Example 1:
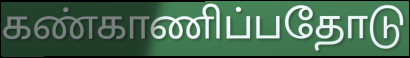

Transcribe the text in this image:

கண்காணிப்பதோடு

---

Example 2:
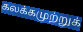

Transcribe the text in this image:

கலக்கமுற்றுக்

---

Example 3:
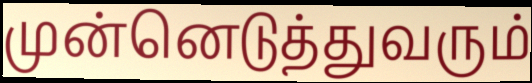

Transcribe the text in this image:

முன்னெடுத்துவரும்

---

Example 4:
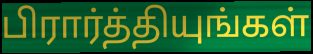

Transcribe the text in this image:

பிரார்த்தியுங்கள்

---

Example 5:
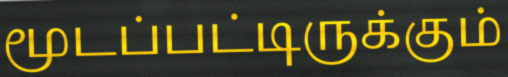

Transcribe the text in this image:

மூடப்பட்டிருக்கும்